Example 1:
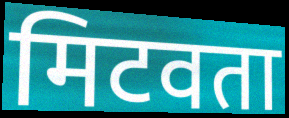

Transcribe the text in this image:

मिटवता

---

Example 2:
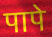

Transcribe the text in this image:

पापे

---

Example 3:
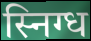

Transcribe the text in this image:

स्‍निग्ध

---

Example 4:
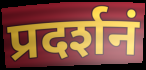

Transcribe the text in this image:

प्रदर्शनं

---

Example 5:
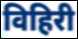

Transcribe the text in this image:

विहिरी